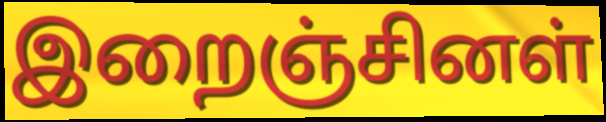
இறைஞ்சினள்